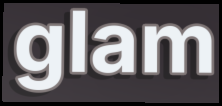
glam